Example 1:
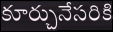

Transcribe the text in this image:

కూర్చునేసరికి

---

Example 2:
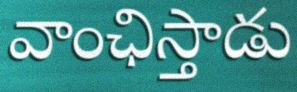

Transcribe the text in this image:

వాంఛిస్తాడు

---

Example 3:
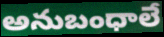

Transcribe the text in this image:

అనుబంధాలే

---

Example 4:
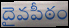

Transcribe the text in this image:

దైవపీఠం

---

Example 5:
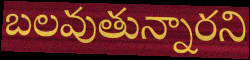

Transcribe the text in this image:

బలవుతున్నారని